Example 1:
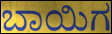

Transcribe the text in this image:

ಬಾಯಿಗ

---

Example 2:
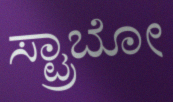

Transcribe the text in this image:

ಸ್ಟ್ರಾಬೋ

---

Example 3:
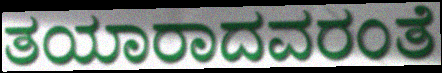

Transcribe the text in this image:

ತಯಾರಾದವರಂತೆ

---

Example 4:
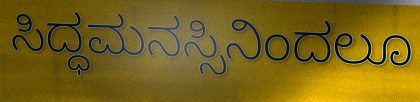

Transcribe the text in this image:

ಸಿದ್ಧಮನಸ್ಸಿನಿಂದಲೂ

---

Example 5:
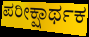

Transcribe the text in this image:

ಪರೀಕ್ಷಾರ್ಥಕ